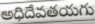
అధిదేవతయగు